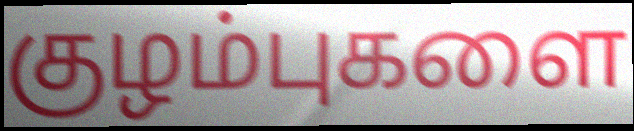
குழம்புகளை